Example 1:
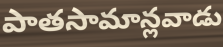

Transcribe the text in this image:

పాతసామాన్లవాడు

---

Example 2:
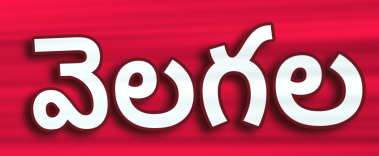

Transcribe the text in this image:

వెలగల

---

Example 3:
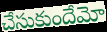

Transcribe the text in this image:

చేసుకుందేమో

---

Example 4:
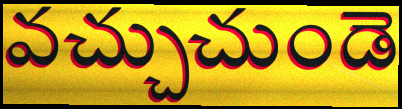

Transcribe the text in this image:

వచ్చుచుండె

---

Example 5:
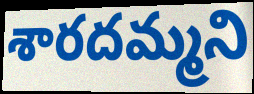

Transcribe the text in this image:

శారదమ్మని